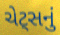
ચેટ્સનું